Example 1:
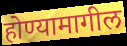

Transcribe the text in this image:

होण्यामागील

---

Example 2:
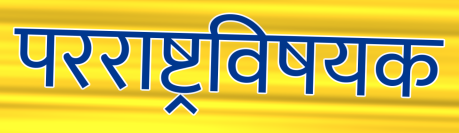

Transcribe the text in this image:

परराष्ट्रविषयक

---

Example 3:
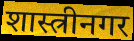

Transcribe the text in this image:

शास्त्रीनगर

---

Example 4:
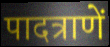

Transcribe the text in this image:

पादत्राणें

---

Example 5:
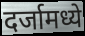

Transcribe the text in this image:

दर्जामध्ये